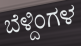
ಬೆಳ್ದಿಂಗಳ